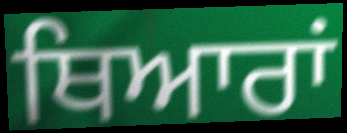
ਥਿਆਰਾਂ